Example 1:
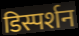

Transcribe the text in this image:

डिस्पर्शन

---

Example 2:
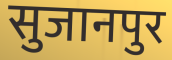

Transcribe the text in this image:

सुजानपुर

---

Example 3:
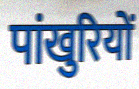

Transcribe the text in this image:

पांखुरियों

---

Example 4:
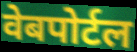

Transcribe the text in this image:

वेबपोर्टल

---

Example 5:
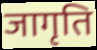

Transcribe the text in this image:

जागृति